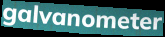
galvanometer